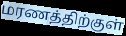
மரணத்திற்குள்